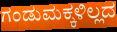
ಗಂಡುಮಕ್ಕಳಿಲ್ಲದ